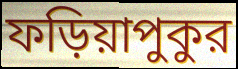
ফড়িয়াপুকুর